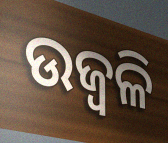
ଉଜ୍ୱଳି